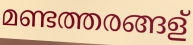
മണ്ടത്തരങ്ങള്